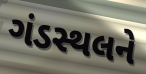
ગંડસ્થલને